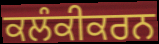
ਕਲੰਕੀਕਰਨ